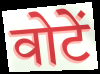
वोटें